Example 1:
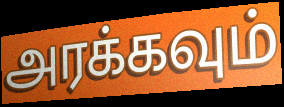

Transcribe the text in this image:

அரக்கவும்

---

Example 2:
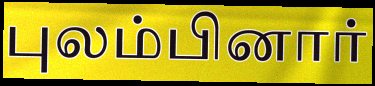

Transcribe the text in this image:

புலம்பினார்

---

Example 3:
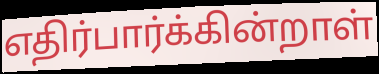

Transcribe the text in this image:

எதிர்பார்க்கின்றாள்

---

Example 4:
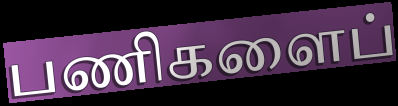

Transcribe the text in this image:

பணிகளைப்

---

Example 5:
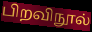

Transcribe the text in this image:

பிறவிநூல்